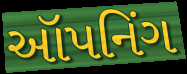
ઑપનિંગ